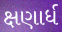
ક્ષણાર્ધ